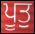
ਪੂਤੁ